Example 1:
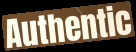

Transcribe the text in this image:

Authentic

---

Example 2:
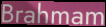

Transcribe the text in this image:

Brahmam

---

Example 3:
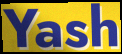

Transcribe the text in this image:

Yash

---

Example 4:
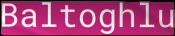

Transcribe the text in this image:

Baltoghlu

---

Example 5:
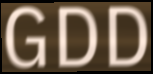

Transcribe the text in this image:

GDD